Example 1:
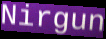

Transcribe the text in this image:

Nirgun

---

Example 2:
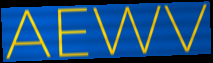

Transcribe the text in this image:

AEWV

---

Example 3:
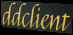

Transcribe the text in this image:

ddclient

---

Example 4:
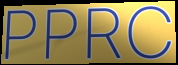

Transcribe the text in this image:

PPRC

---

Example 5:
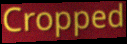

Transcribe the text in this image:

Cropped